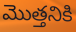
మొత్తనికి